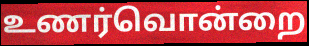
உணர்வொன்றை